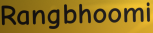
Rangbhoomi